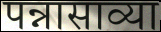
पन्नासाव्या